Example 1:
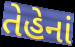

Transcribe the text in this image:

તેહેનાં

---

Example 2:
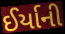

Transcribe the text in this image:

ઈર્યાની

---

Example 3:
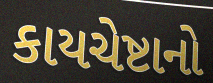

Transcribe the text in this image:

કાયચેષ્ટાનો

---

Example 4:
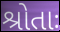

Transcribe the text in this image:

શ્રોતાઃ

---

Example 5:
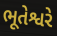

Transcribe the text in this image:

ભૂતેશ્વરે